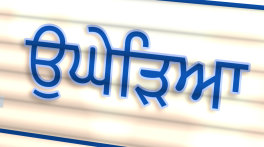
ਉਘੇੜਿਆ